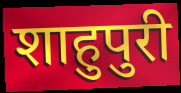
शाहुपुरी